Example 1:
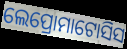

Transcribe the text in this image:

ଲେପ୍ରୋମାଟୋସିସ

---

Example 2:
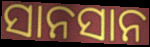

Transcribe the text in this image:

ସାନସାନ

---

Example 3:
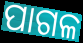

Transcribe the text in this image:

ପାଗଳ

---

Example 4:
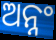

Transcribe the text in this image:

ଅନ୍ନଂ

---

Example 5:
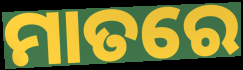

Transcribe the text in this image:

ମାତରେ